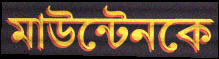
মাউন্টেনকে